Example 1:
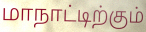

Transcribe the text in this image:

மாநாட்டிற்கும்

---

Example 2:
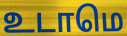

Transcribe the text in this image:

உடாமெ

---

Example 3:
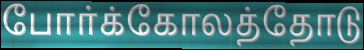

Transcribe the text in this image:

போர்க்கோலத்தோடு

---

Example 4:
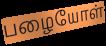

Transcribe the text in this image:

பழையோள்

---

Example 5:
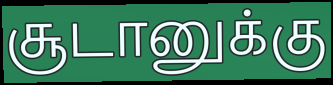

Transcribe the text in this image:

சூடானுக்கு